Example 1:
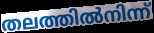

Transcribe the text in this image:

തലത്തിൽനിന്ന്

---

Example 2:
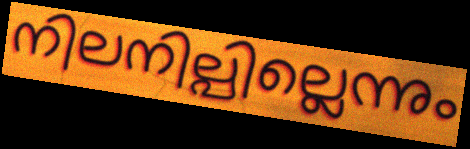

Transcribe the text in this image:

നിലനില്പില്ലെന്നും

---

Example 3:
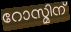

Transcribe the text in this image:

റോസ്മിന്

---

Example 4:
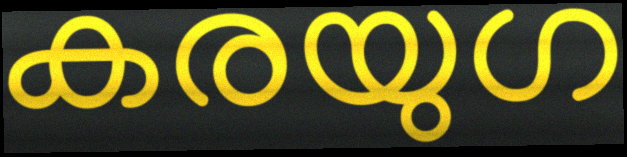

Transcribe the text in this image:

കരയുഗ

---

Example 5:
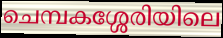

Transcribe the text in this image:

ചെമ്പകശ്ശേരിയിലെ